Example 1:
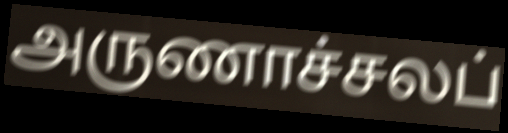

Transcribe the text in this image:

அருணாச்சலப்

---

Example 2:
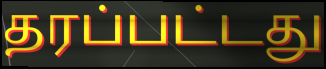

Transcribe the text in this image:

தரப்பட்டது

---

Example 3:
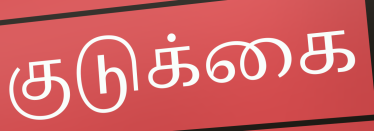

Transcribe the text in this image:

குடுக்கை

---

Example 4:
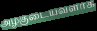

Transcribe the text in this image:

அழகுடையவளாக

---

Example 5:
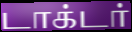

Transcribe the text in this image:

டாக்டர்